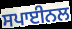
ਸਪਾਈਨਲ